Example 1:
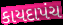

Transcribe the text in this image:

કાયદાપંચ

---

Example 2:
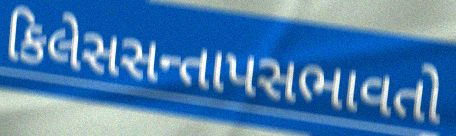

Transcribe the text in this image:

કિલેસસન્તાપસભાવતો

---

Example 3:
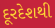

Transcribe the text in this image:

દૂરદેશથી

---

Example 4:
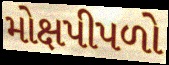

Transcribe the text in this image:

મોક્ષપીપળો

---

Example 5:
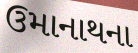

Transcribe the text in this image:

ઉમાનાથના